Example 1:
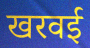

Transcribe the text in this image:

खरवई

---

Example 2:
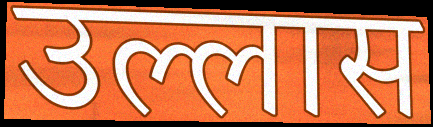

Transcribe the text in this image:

उल्‍लास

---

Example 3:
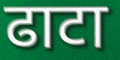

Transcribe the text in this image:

ढाटा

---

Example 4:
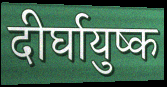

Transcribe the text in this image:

दीर्घायुष्क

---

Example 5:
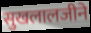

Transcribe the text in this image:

सुखलालजीने